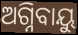
ଅଗ୍ନିବାୟୁ